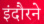
इंदौरने